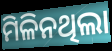
ମିଳିନଥିଲା